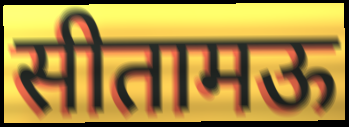
सीतामऊ